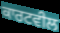
ਕਾਰਟਵੀਲ